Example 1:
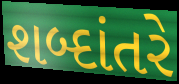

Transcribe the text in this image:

શબ્દાંતરે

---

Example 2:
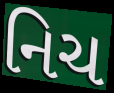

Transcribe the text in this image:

નિચ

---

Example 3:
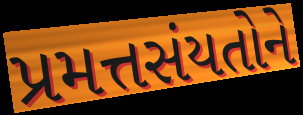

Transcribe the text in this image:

પ્રમત્તસંયતોને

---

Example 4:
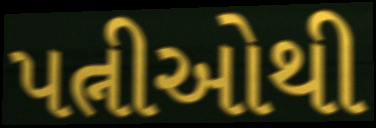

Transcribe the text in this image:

પત્નીઓથી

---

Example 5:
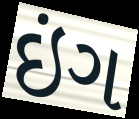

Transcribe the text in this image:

ઇંગ